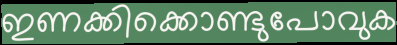
ഇണക്കിക്കൊണ്ടുപോവുക